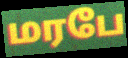
மரபே